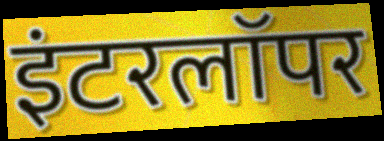
इंटरलॉपर